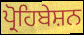
ਪ੍ਰੋਹਿਬੇਸ਼ਨ